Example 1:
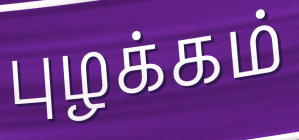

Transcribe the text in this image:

புழக்கம்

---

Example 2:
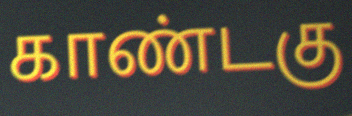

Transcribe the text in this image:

காண்டகு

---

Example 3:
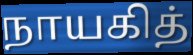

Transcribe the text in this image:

நாயகித்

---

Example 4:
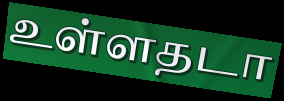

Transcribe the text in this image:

உள்ளதடா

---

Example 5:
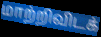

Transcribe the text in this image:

மாற்றிவிடக்